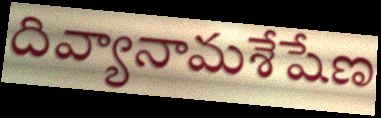
దివ్యానామశేషేణ